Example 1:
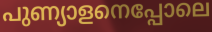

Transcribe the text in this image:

പുണ്യാളനെപ്പോലെ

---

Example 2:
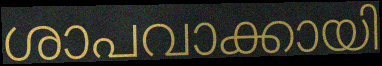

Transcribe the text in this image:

ശാപവാക്കായി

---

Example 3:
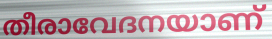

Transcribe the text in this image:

തീരാവേദനയാണ്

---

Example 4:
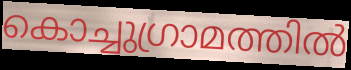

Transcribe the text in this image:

കൊച്ചുഗ്രാമത്തിൽ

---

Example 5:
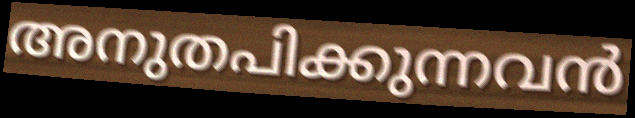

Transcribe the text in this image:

അനുതപിക്കുന്നവൻ